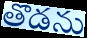
తొడను